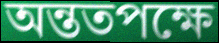
অন্ততপক্ষে